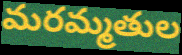
మరమ్మతుల